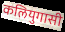
कलियुगासी